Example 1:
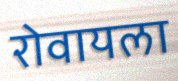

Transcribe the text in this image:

रोवायला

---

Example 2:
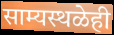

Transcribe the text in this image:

साम्यस्थळेही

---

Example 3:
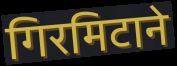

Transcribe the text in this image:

गिरमिटाने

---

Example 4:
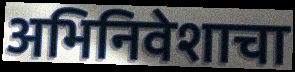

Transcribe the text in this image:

अभिनिवेशाचा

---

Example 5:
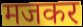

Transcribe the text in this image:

मजकर